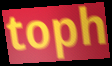
toph